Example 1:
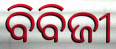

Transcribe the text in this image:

ବିବିଜୀ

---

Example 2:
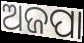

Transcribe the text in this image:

ଅଜପା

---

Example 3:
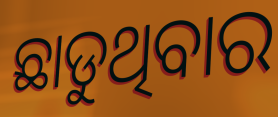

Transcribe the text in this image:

ଛାଡୁଥିବାର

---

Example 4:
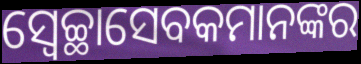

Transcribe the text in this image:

ସ୍ୱେଚ୍ଛାସେବକମାନଙ୍କର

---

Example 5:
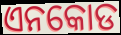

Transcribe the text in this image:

ଏନକୋଡ